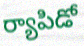
ర్యాపిడో